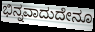
ಭಿನ್ನವಾದುದೇನೂ